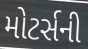
મોટર્સની